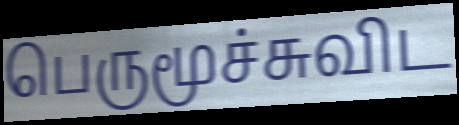
பெருமூச்சுவிட